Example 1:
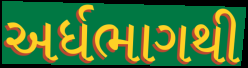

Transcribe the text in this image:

અર્ધભાગથી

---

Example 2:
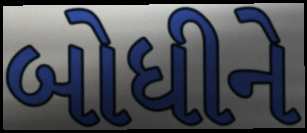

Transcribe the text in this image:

બોધીને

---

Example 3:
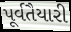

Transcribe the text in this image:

પૂર્વતૈયારી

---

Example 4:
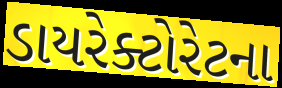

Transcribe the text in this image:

ડાયરેક્ટોરેટના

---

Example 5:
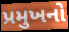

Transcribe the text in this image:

પ્રમુખનો